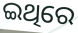
ଇଥିରେ